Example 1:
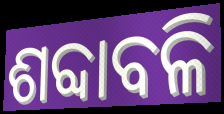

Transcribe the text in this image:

ଶବ୍ଦାବଳି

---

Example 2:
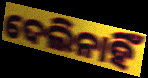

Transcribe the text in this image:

ଦେଲିନାହିଁ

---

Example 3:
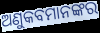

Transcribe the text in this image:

ଅଣୁକବମାନଙ୍କର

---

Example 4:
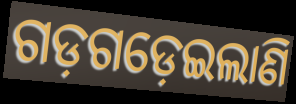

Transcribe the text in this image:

ଗଡ଼ଗଡ଼େଇଲାଣି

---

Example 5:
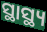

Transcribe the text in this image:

ସ୍ଥାସ୍ଥ୍ୟ